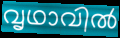
വൃഥാവിൽ